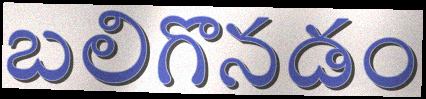
బలిగొనడం